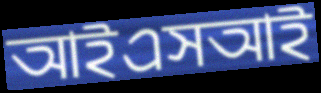
আইএসআই